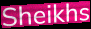
Sheikhs